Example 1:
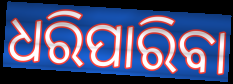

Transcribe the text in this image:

ଧରିପାରିବା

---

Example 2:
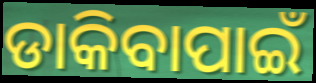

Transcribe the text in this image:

ଡାକିବାପାଇଁ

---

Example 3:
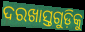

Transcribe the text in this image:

ଦରଖାସ୍ତଗୁଡ଼ିକୁ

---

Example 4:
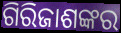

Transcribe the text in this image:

ଗିରିଜାଶଙ୍କର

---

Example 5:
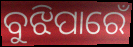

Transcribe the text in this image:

ବୁଝିପାରେଁ